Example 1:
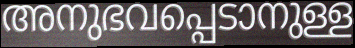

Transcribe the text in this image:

അനുഭവപ്പെടാനുള്ള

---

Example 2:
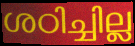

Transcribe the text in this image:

ശഠിച്ചില്ല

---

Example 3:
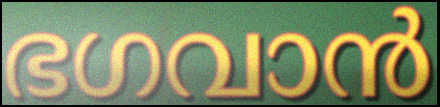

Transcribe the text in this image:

ഭഗവാൻ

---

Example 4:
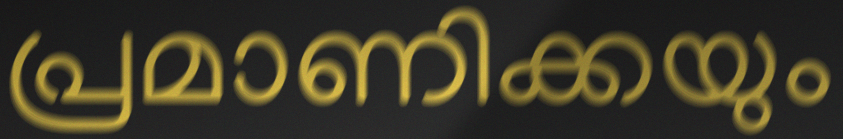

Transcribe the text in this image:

പ്രമാണിക്കയും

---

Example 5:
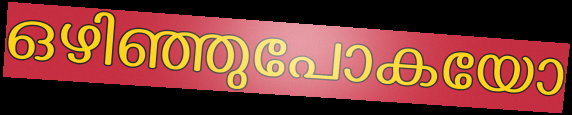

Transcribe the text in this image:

ഒഴിഞ്ഞുപോകയോ